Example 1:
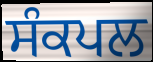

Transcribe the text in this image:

ਸੰਕਪਲ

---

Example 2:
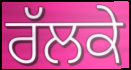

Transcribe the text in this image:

ਰੱਲਕੇ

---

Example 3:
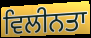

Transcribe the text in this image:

ਵਿਲੀਨਤਾ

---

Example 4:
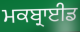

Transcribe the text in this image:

ਮਕਬ੍ਰਾਈਡ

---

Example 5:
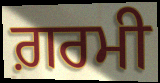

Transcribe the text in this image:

ਗ਼ਰਮੀ